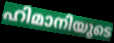
ഹിമാനിയുടെ